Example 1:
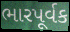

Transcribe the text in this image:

ભારપૂર્વક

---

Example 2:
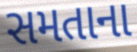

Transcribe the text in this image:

સમતાના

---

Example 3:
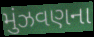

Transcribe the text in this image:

મુંઝવણના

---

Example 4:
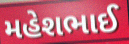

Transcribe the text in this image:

મહેશભાઈ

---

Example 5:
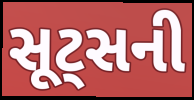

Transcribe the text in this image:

સૂટ્સની